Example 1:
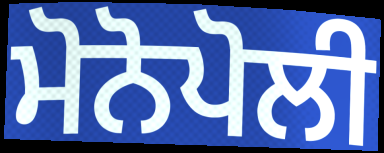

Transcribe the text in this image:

ਮੋਨੋਪੋਲੀ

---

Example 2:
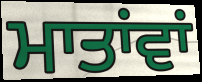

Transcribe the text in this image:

ਮਾਤਾਂਵਾਂ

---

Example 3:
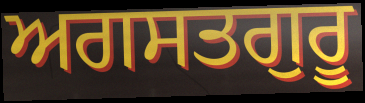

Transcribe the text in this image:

ਅਗਸਤਗੁਰੂ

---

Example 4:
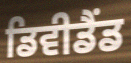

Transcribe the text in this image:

ਡਿਵੀਡੈਂਡ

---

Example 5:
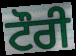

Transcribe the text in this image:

ਟੌਰੀ